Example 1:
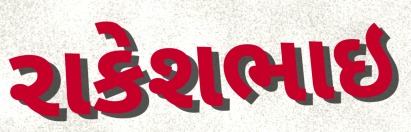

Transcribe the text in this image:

રાકેશભાઇ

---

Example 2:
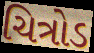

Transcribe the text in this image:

ચિત્રોડ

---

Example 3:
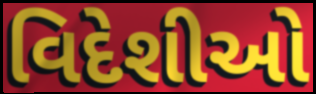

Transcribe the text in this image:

વિદેશીઓ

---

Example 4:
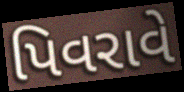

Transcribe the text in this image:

પિવરાવે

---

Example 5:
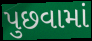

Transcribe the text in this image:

પુછવામાં